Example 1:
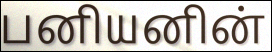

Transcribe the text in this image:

பனியனின்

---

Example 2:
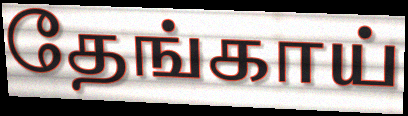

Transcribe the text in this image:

தேங்காய்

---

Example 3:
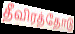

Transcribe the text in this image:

தீவிரத்தோடு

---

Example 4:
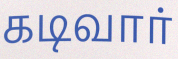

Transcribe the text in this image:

கடிவார்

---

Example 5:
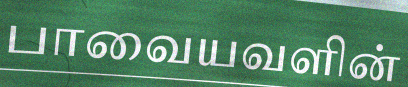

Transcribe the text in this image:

பாவையவளின்